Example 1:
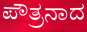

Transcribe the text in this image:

ಪೌತ್ರನಾದ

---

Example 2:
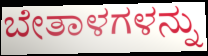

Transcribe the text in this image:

ಬೇತಾಳಗಳನ್ನು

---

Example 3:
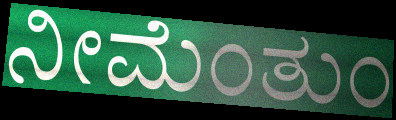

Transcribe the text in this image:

ನೀಮೆಂತುಂ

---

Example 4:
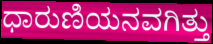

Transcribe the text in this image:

ಧಾರುಣಿಯನವಗಿತ್ತು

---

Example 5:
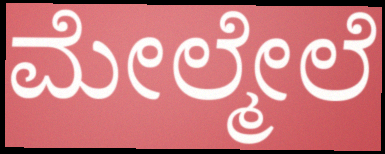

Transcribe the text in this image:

ಮೇಲ್ಮೇಲೆ